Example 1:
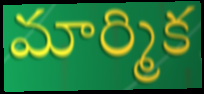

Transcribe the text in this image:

మార్మిక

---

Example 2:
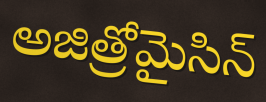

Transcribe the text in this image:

అజిత్రోమైసిన్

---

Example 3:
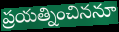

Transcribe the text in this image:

ప్రయత్నించిననూ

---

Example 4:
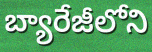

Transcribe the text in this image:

బ్యారేజీలోని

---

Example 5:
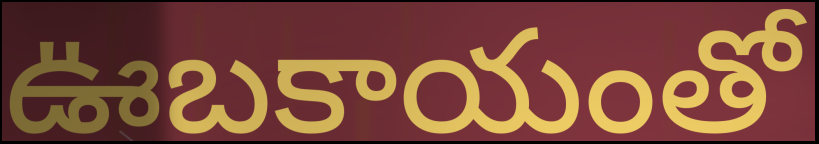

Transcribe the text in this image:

ఊబకాయంతో